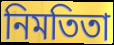
নিমতিতা